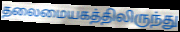
தலைமையகத்திலிருந்து